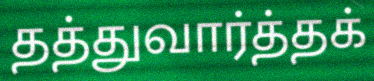
தத்துவார்த்தக்